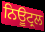
ਨਿਊਟ੍ਰਲ